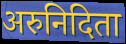
अरुनिदिता